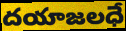
దయాజలధే